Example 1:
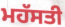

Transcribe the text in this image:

ਮਹੱਸਤੀ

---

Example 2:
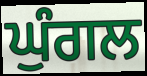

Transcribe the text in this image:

ਘੁੰਗਲ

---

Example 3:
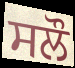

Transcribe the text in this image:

ਸਲੌ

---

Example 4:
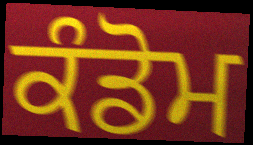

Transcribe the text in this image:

ਕੰਡੋਮ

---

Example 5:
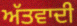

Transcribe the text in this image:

ਅੱਤਵਾਦੀ